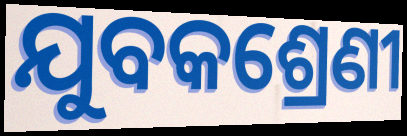
ଯୁବକଶ୍ରେଣୀ